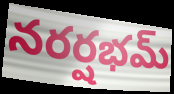
నరర్షభమ్